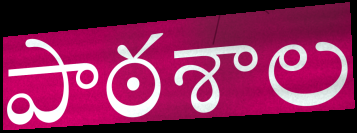
పాఠశాల